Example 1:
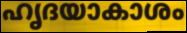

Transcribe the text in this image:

ഹൃദയാകാശം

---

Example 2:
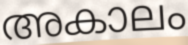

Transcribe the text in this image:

അകാലം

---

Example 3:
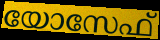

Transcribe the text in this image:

യോസേഫ്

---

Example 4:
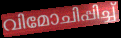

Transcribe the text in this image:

വിമോചിപ്പിച്ച്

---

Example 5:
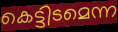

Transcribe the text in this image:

കെട്ടിടമെന്ന